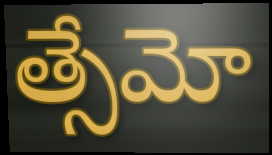
త్సేమో